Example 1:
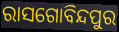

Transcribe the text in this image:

ରାସଗୋବିନ୍ଦପୁର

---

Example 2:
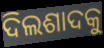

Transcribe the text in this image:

ଦିଲଶାଦକୁ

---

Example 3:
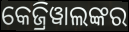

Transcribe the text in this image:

କେଜ୍ରିୱାଲଙ୍କର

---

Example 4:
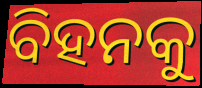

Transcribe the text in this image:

ବିହନକୁ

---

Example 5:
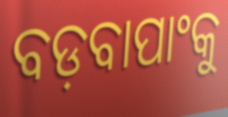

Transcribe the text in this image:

ବଡ଼ବାପାଂକୁ